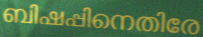
ബിഷപ്പിനെതിരേ